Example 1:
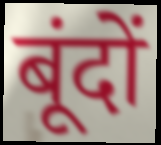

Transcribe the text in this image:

बूंदों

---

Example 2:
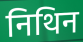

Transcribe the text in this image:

निथिन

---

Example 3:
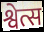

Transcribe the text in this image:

श्वेत्स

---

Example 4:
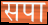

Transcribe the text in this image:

सपा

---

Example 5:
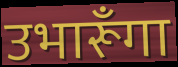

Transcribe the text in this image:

उभारूँगा